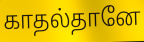
காதல்தானே